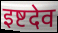
इष्टदेव